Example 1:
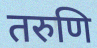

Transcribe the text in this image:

तरुणि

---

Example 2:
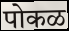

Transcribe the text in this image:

पोकळ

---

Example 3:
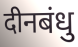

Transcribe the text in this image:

दीनबंधु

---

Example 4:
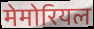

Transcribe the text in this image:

मेमोरियल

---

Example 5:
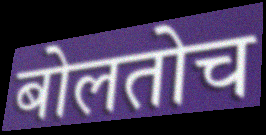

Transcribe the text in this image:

बोलतोच